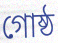
গোষ্ঠ